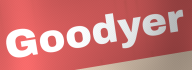
Goodyer